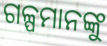
ଗଳ୍ପମାନଙ୍କୁ